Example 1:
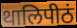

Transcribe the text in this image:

थालिपीठं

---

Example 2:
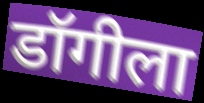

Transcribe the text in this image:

डॉगीला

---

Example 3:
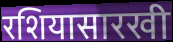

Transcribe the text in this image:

रशियासारखी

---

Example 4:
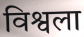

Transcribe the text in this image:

विश्वला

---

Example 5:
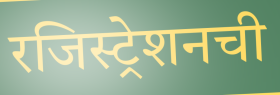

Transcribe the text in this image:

रजिस्ट्रेशनची